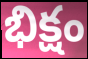
భిక్షం